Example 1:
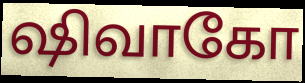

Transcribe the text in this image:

ஷிவாகோ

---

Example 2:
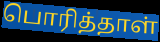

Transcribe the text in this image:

பொரித்தாள்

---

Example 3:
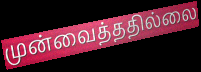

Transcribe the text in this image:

முன்வைத்ததில்லை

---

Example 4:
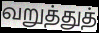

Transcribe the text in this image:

வறுத்துத்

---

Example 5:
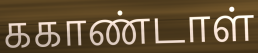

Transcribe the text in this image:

ககாண்டாள்